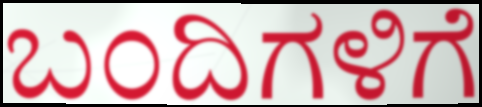
ಬಂದಿಗಳಿಗೆ